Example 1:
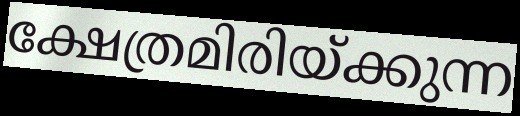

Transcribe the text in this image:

ക്ഷേത്രമിരിയ്ക്കുന്ന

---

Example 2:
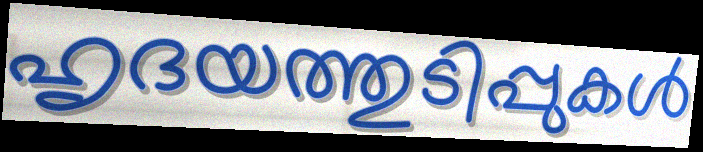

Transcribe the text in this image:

ഹൃദയത്തുടിപ്പുകൾ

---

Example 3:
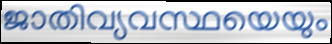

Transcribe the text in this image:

ജാതിവ്യവസ്ഥയെയും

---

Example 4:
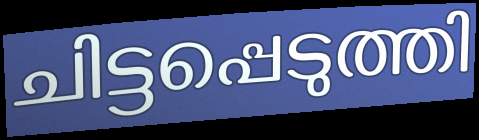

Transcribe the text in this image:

ചിട്ടപ്പെടുത്തി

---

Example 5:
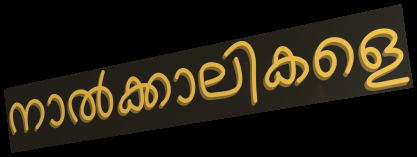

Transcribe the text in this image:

നാൽക്കാലികളെ